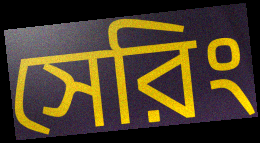
সেরিং